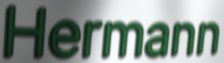
Hermann